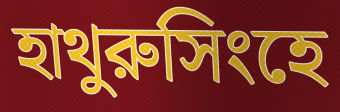
হাথুরুসিংহে